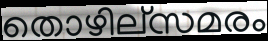
തൊഴില്സമരം